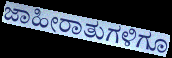
ಜಾಹೀರಾತುಗಳಿಗೂ